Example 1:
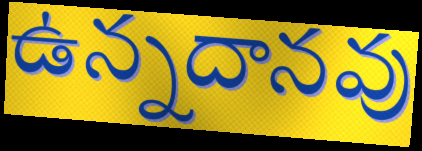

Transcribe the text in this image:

ఉన్నదానవు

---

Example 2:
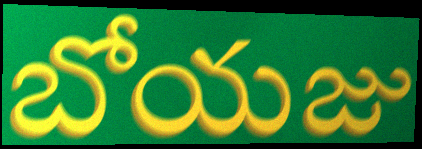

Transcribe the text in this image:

బోయజు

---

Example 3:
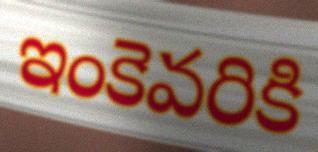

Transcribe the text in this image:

ఇంకెవరికి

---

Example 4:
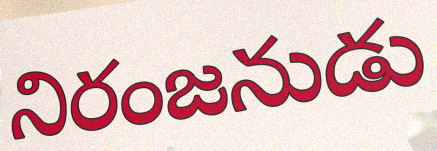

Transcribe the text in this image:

నిరంజనుడు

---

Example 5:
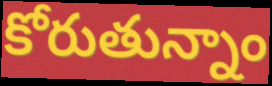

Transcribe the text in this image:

కోరుతున్నాం